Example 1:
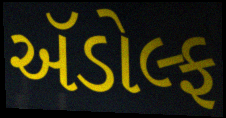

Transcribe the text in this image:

ઍડોલ્ફ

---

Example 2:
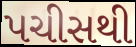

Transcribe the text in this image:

પચીસથી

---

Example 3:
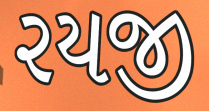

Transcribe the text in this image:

રયજી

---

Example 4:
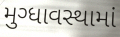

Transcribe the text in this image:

મુગ્ધાવસ્થામાં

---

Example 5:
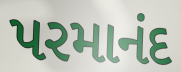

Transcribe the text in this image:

પરમાનંદ